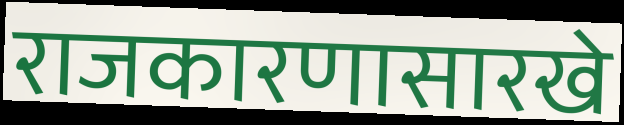
राजकारणासारखे